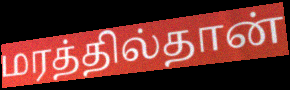
மரத்தில்தான்